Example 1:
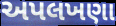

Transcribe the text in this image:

અપલખણા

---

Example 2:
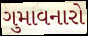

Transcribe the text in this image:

ગુમાવનારો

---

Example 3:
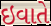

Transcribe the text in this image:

ઇવાતે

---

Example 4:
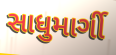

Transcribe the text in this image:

સાધુમાર્ગી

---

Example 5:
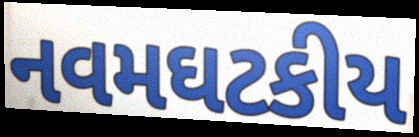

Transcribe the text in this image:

નવમઘટકીય